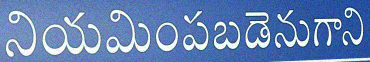
నియమింపబడెనుగాని